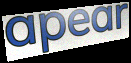
apear